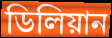
ডিলিয়ান